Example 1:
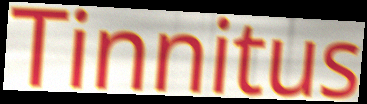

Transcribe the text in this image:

Tinnitus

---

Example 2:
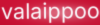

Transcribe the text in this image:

valaippoo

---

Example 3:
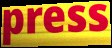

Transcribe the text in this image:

press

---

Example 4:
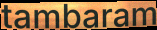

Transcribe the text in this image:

tambaram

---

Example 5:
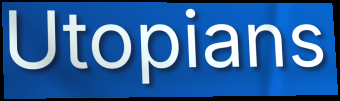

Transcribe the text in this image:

Utopians